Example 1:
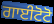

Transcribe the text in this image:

ਗਾਈਟੋਟੋ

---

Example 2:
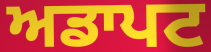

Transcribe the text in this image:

ਅਡਾਪਟ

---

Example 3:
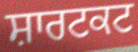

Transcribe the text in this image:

ਸ਼ਾਰਟਕਟ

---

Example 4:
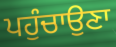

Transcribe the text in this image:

ਪਹੁੰਚਾਉਣਾ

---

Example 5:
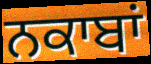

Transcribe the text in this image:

ਨਕਾਬਾਂ